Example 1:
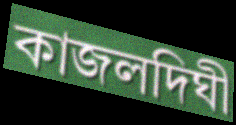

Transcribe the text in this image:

কাজলদিঘী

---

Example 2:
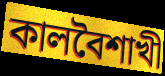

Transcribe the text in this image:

কালবৈশাখী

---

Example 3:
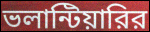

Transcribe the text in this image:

ভলান্টিয়ারির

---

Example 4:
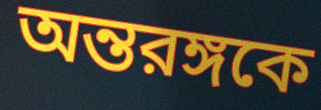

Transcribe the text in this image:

অন্তরঙ্গকে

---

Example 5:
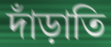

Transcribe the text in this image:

দাঁড়াতি